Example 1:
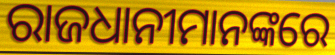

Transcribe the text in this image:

ରାଜଧାନୀମାନଙ୍କରେ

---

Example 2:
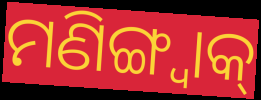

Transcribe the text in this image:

ମଣିଙ୍ଗ୍ୱାକ୍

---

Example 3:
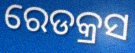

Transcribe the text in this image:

ରେଡକ୍ରସ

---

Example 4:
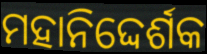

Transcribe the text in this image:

ମହାନିଦ୍ଦେର୍ଶକ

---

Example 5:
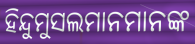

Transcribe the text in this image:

ହିନ୍ଦୁମୁସଲମାନମାନଙ୍କ